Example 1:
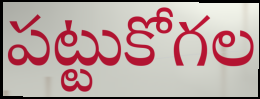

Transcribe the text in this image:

పట్టుకోగల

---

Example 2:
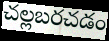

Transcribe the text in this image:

చల్లబరచడం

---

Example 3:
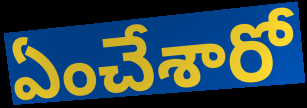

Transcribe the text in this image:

ఏంచేశారో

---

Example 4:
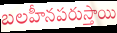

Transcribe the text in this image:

బలహీనపరుస్తాయి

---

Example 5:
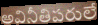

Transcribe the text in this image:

అవినీతిపరులే